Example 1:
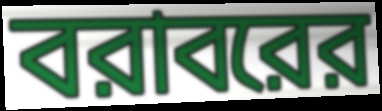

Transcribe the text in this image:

বরাবরের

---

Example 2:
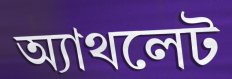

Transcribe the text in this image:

অ্যাথলেট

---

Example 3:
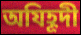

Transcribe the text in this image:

অযিহূদী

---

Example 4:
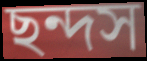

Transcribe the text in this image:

ছন্দস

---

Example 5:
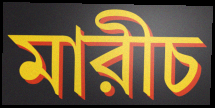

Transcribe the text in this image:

মারীচ